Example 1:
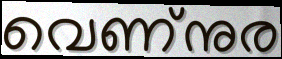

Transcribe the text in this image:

വെണ്നുര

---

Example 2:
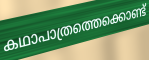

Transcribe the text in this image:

കഥാപാത്രത്തെക്കൊണ്ട്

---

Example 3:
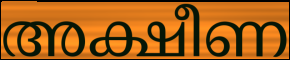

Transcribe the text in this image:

അക്ഷീണ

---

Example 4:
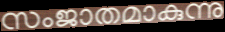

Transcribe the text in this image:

സംജാതമാകുന്നു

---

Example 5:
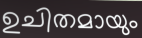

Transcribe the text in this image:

ഉചിതമായും